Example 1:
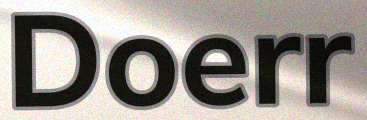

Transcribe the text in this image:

Doerr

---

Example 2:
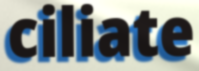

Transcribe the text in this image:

ciliate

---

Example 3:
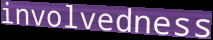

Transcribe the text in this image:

involvedness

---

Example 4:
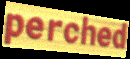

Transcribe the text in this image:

perched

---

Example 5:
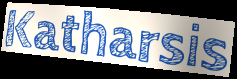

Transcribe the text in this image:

Katharsis